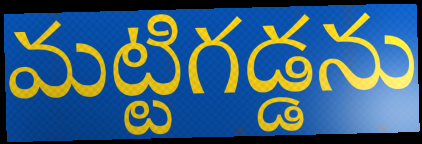
మట్టిగడ్డను